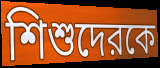
শিশুদেরকে